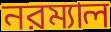
নরম্যাল